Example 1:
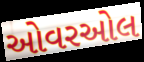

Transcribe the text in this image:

ઓવરઓલ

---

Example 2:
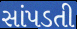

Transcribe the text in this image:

સાંપડતી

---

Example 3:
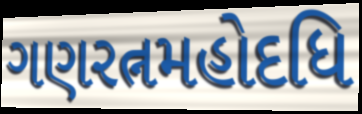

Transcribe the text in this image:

ગણરત્નમહોદધિ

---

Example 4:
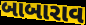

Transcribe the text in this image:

બાબારાવ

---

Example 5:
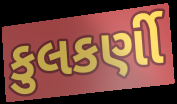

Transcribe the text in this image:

કુલકર્ણી